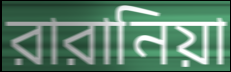
রারানিয়া